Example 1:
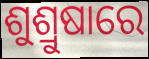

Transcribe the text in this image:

ଶୁଶ୍ରୁଷାରେ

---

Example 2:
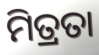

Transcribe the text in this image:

ମିତ୍ରତା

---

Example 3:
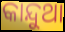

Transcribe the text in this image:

କାନ୍ଦୁଥା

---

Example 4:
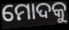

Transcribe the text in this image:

ମୋଦକୁ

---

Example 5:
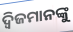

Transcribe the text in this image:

ଦ୍ଵିଜମାନଙ୍କୁ